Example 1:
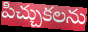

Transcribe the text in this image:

పిచ్చుకలను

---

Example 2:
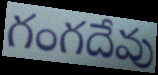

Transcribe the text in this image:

గంగదేవు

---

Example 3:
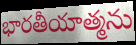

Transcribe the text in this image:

భారతీయాత్మను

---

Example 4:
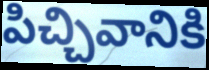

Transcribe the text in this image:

పిచ్చివానికి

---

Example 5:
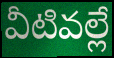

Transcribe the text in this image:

వీటివల్లే